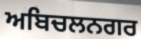
ਅਬਿਚਲਨਗਰ